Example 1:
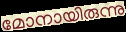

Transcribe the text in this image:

മോനായിരുന്നു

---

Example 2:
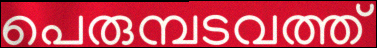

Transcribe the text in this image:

പെരുമ്പടവത്ത്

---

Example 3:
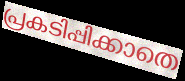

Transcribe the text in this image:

പ്രകടിപ്പിക്കാതെ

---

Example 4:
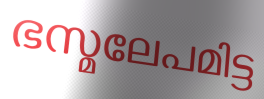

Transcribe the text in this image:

ഭസ്മലേപമിട്ട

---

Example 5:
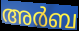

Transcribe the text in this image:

അർബ